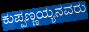
ಕುಪ್ಪಣ್ಣಯ್ಯನವರು